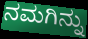
ನಮಗಿನ್ನು